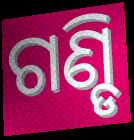
ଗଣ୍ଡି